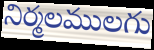
నిర్మలములగు